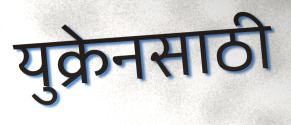
युक्रेनसाठी